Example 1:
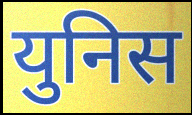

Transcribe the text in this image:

युनिस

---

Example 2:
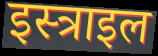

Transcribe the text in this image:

इस्त्राइल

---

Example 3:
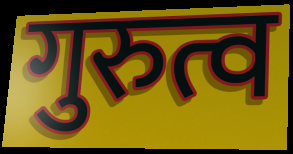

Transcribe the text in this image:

गुरुत्व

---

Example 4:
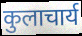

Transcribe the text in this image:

कुलाचार्य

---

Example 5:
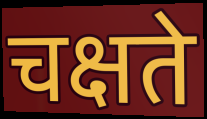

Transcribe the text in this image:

चक्षते